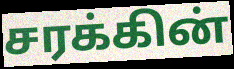
சரக்கின்